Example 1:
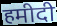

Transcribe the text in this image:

हमीदी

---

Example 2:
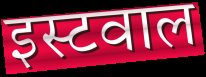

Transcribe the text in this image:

इस्टवाल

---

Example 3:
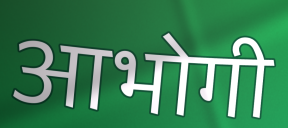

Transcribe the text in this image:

आभोगी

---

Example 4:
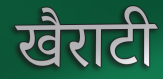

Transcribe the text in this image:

खैराटी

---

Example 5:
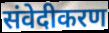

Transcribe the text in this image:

संवेदीकरण